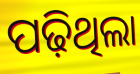
ପଢ଼ିଥିଲା